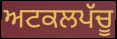
ਅਟਕਲਪੱਚੂ